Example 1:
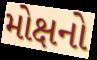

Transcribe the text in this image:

મોક્ષનો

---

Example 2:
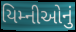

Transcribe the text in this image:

યિમ્નીઓનું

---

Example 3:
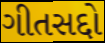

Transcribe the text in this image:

ગીતસદ્દો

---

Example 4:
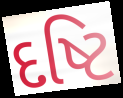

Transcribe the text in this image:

દષ્ટિ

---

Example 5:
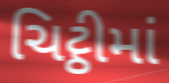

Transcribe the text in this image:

ચિટ્ઠીમાં